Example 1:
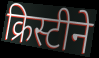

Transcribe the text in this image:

क्रिस्टीने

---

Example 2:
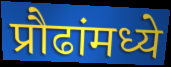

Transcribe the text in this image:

प्रौढांमध्ये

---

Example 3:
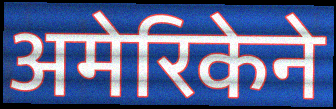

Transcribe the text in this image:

अमेरिकेने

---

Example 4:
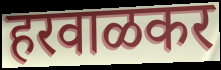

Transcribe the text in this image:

हरवाळकर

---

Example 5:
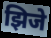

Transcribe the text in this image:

झिजे